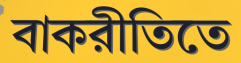
বাকরীতিতে